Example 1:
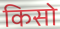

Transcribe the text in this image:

किसो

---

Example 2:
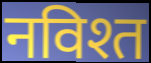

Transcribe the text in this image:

नविश्त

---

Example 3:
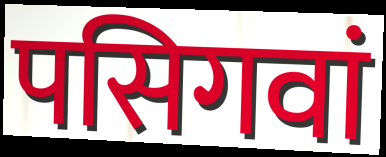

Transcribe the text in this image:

पसिगवां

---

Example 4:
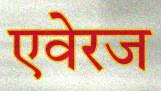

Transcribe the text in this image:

एवेरज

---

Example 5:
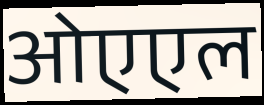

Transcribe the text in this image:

ओएएल